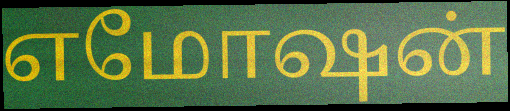
எமோஷன்